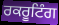
ਰਕਰੂਟਿੰਗ